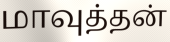
மாவுத்தன்